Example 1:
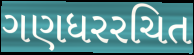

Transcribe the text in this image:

ગણધરરચિત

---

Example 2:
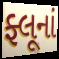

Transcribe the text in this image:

ફ્લૂનાં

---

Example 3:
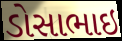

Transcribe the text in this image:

ડોસાભાઇ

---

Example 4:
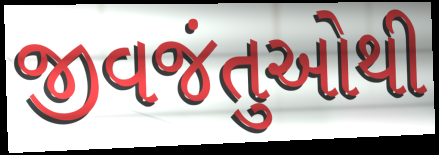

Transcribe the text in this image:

જીવજંતુઓથી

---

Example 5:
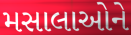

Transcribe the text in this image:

મસાલાઓને